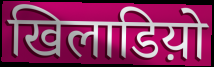
खिलाडिय़ो